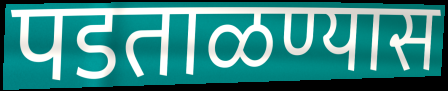
पडताळण्यास